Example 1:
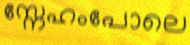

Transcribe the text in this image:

സ്നേഹംപോലെ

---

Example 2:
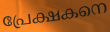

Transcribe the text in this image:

പ്രേക്ഷകനെ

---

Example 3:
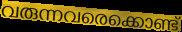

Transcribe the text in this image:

വരുന്നവരെക്കൊണ്ട്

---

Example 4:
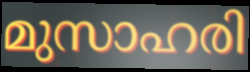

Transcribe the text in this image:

മുസാഹരി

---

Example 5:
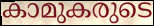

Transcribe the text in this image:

കാമുകരുടെ